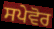
ਸਪੇਵੋਰ